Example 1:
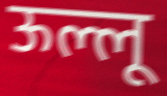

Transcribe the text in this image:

ऊल्लू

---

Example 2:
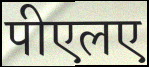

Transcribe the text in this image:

पीएलए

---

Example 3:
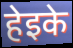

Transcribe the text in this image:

हेइके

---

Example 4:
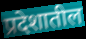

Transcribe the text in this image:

प्रदेशातील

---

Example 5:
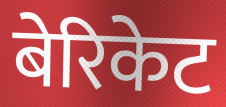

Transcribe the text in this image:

बेरिकेट